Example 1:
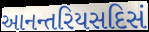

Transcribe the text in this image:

આનન્તરિયસદિસં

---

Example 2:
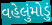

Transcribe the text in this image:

વહેલુંમોડું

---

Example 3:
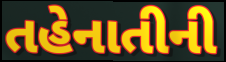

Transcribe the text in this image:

તહેનાતીની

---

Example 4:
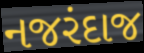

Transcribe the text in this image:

નજરંદાજ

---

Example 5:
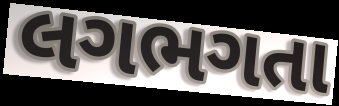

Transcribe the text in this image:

લગભગતા